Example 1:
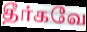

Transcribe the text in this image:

தீர்கவே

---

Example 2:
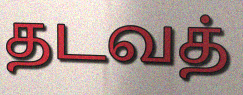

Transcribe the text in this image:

தடவத்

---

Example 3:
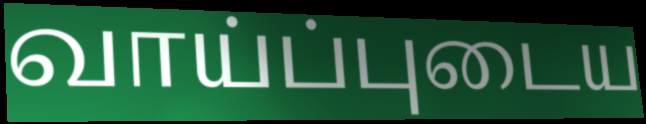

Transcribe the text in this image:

வாய்ப்புடைய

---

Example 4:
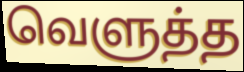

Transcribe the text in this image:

வெளுத்த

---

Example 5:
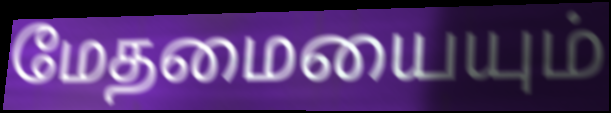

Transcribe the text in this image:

மேதமையையும்